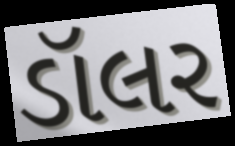
ડૉલર